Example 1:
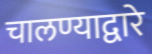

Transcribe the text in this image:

चालण्याद्वारे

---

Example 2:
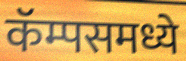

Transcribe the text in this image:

कॅम्पसमध्ये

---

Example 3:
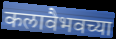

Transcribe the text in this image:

कलावैभवच्या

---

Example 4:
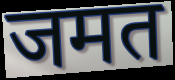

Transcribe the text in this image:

जमत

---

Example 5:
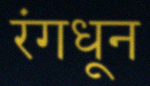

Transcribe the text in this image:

रंगधून